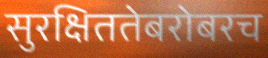
सुरक्षिततेबरोबरच